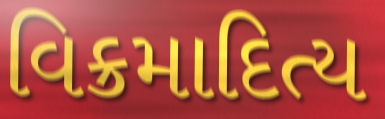
વિક્રમાદિત્‍ય